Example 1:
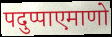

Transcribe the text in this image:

पदुप्पाएमाणो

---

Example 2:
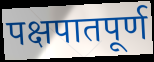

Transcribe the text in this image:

पक्षपातपूर्ण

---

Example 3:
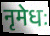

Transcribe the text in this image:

नृमेधः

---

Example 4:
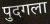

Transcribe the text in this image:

पुदगला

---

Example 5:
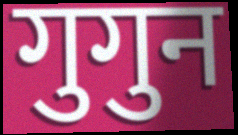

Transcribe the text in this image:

गुगुन